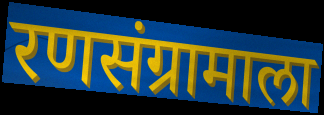
रणसंग्रामाला